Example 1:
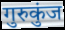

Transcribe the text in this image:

गुरुकुंज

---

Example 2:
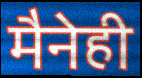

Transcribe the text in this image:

मैनेही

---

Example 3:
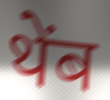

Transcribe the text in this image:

थेंब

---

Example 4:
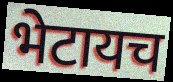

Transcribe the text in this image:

भेटायच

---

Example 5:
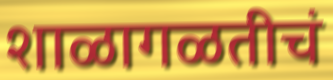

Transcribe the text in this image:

शाळागळतीचं